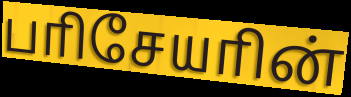
பரிசேயரின்